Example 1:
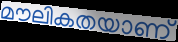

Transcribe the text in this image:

മൗലികതയാണ്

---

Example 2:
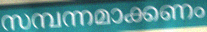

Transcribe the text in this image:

സമ്പന്നമാക്കണം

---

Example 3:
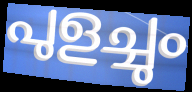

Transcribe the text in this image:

പുളച്ചും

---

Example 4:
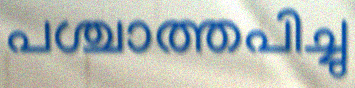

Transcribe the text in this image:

പശ്ചാത്തപിച്ചു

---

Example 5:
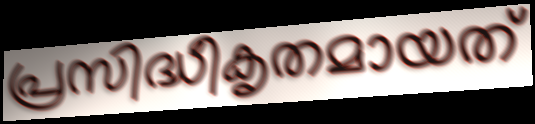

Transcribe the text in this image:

പ്രസിദ്ധീകൃതമായത്